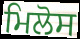
ਮਿਲੋਸ